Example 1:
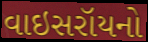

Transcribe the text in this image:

વાઇસરૉયનો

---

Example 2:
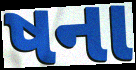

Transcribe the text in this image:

ષના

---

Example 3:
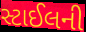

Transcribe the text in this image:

સ્ટાઈલની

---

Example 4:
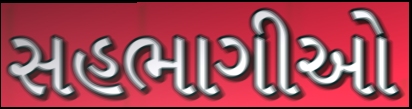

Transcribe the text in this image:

સહભાગીઓ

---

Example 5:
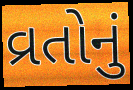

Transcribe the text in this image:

વ્રતોનું